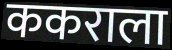
ककराला